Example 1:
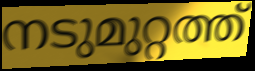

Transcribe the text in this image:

നടുമുറ്റത്ത്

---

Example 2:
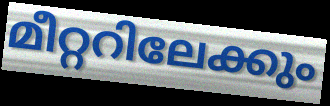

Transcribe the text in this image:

മീറ്ററിലേക്കും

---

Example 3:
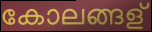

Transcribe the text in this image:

കോലങ്ങള്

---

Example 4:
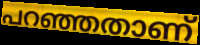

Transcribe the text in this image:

പറഞ്ഞതാണ്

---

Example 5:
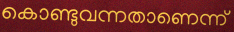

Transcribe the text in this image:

കൊണ്ടുവന്നതാണെന്ന്